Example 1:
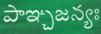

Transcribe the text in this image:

పాఞ్చజన్యః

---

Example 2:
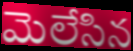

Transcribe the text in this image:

మెలేసిన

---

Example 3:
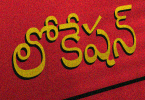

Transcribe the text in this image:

లోకేషన్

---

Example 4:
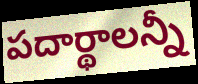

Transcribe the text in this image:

పదార్థాలన్నీ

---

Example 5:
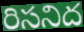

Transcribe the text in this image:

రిసనిద